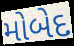
મોબેદ